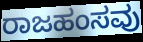
ರಾಜಹಂಸವು